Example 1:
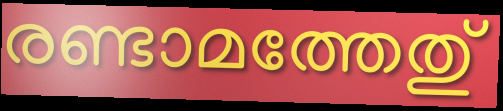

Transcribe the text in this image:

രണ്ടാമത്തേതു്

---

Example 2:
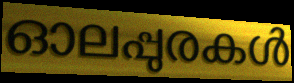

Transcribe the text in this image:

ഓലപ്പുരകൾ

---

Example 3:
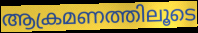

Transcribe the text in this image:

ആക്രമണത്തിലൂടെ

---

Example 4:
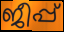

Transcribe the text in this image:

ജീപ്പ്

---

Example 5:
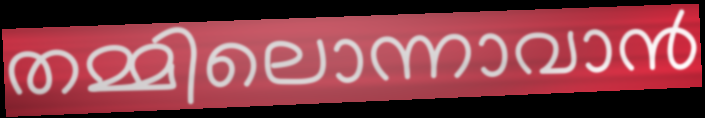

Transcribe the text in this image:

തമ്മിലൊന്നാവാൻ